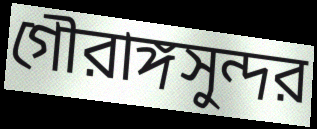
গৌরাঙ্গসুন্দর